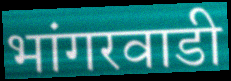
भांगरवाडी